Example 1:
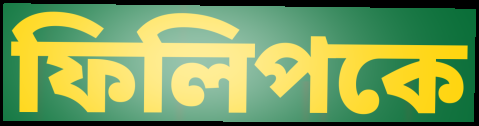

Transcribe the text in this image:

ফিলিপকে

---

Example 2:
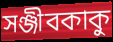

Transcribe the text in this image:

সঞ্জীবকাকু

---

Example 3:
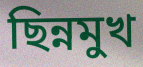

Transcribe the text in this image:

ছিন্নমুখ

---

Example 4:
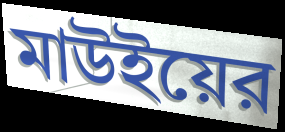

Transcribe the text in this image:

মাউইয়ের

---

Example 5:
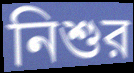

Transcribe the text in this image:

নিশুর